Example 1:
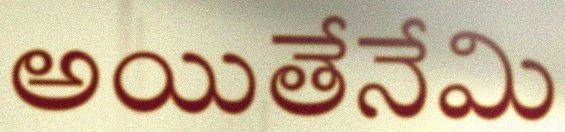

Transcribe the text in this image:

అయితేనేమి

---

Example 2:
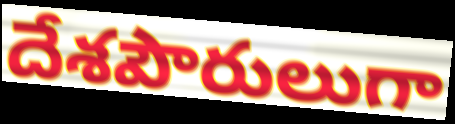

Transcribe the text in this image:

దేశపౌరులుగా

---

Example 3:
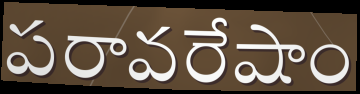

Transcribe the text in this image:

పరావరేషాం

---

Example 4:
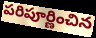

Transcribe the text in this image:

పరిపూర్ణించిన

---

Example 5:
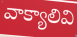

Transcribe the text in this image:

వాక్యాలివి